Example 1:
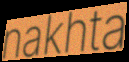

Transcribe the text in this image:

nakhta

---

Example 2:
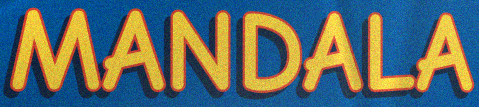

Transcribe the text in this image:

MANDALA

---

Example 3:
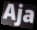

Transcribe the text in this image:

Aja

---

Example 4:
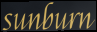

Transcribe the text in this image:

sunburn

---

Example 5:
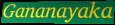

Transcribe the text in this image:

Gananayaka